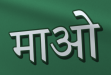
माओ